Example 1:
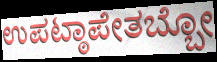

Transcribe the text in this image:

ಉಪಟ್ಠಾಪೇತಬ್ಬೋ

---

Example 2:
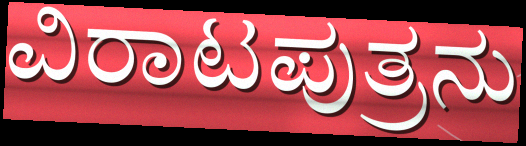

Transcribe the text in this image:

ವಿರಾಟಪುತ್ರನು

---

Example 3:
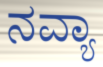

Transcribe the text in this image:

ನವ್ಯಾ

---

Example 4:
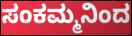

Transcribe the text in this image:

ಸಂಕಮ್ಮನಿಂದ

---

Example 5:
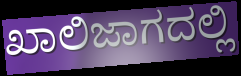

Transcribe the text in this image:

ಖಾಲಿಜಾಗದಲ್ಲಿ